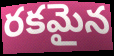
రకమైన